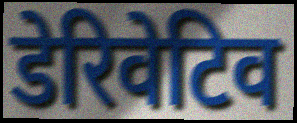
डेरिवेटिव